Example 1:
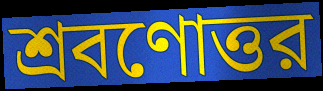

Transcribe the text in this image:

শ্রবণোত্তর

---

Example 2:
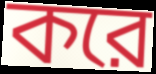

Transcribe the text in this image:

করে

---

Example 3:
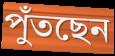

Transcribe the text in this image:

পুঁতছেন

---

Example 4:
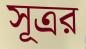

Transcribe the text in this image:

সূত্রর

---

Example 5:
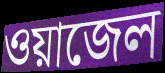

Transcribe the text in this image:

ওয়াজেল